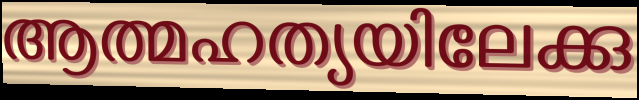
ആത്മഹത്യയിലേക്കു